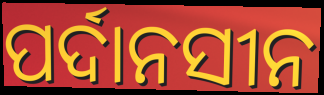
ପର୍ଦାନସୀନ